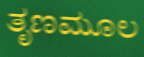
ತೃಣಮೂಲ